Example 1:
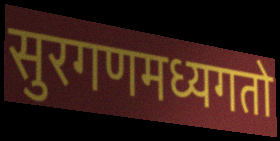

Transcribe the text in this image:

सुरगणमध्यगतो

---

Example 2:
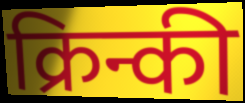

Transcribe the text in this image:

क्रिन्की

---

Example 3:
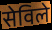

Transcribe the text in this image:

सेविले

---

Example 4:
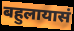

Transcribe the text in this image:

बहुलायासं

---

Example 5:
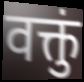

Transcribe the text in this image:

वक्तुं